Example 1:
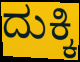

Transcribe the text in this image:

ದುಕ್ಕಿ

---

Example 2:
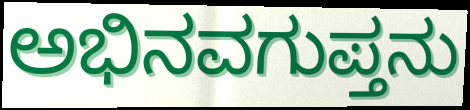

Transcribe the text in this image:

ಅಭಿನವಗುಪ್ತನು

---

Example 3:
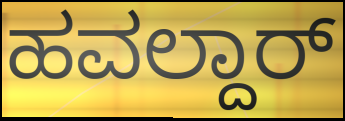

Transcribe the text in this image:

ಹವಲ್ದಾರ್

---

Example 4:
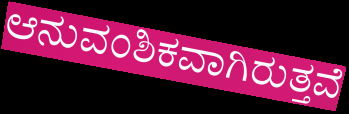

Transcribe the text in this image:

ಆನುವಂಶಿಕವಾಗಿರುತ್ತವೆ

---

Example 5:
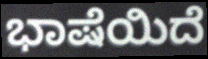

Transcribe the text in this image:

ಭಾಷೆಯಿದೆ